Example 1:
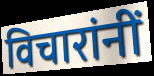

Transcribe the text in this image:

विचारांनीं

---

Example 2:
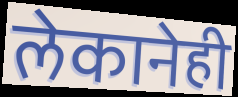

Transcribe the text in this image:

लेकानेही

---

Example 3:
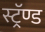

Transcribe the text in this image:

स्ट्रॅण्ड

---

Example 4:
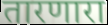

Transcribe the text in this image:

तारणारा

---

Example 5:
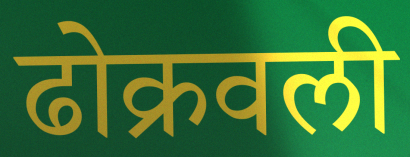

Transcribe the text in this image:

ढोक्रवली